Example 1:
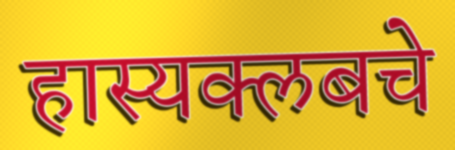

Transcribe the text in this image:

हास्यक्लबचे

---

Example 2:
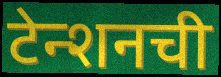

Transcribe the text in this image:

टेन्शनची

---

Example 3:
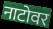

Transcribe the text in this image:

नाटोवर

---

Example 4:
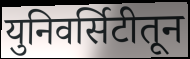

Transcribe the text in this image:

युनिवर्सिटीतून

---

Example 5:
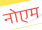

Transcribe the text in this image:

नोएम